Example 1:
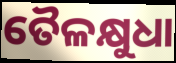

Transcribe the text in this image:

ତୈଳକ୍ଷୁଧା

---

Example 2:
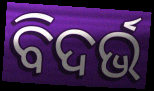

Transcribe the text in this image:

ବିଦର୍ଭ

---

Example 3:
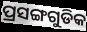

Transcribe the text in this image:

ପ୍ରସଙ୍ଗଗୁଡିକ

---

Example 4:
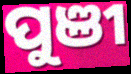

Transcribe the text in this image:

ପୁଞୀ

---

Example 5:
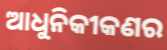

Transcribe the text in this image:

ଆଧୁନିକୀକଣର